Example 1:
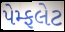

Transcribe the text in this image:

પેમ્ફલેટ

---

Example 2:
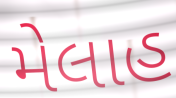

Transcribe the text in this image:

મેલાહ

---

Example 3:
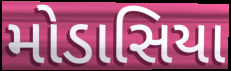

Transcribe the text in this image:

મોડાસિયા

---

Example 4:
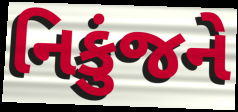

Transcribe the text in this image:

નિકુંજને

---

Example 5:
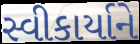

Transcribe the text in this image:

સ્વીકાર્યાને